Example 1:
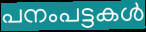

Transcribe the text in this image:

പനംപട്ടകൾ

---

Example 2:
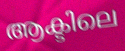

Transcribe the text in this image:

ആക്ടിലെ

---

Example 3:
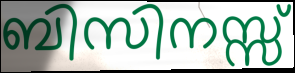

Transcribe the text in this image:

ബിസിനസ്സ്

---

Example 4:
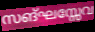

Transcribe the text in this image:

സങ്ഘസ്സേവ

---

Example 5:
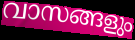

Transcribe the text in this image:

വാസങ്ങളും